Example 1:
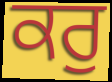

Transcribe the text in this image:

ਕਰੁ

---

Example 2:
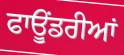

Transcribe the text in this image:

ਫਾਊਂਡਰੀਆਂ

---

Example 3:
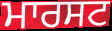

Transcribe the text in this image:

ਮਾਰਸਟ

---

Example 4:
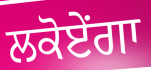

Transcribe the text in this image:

ਲਕੋਏਂਗਾ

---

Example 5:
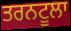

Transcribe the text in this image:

ਤਰਨਟੂਲਾ